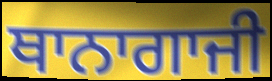
ਥਾਨਾਗਾਜੀ